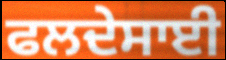
ਫਲਦੇਸਾਈ